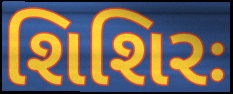
શિશિરઃ